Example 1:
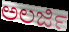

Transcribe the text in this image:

ಅಲರ್ಜಿ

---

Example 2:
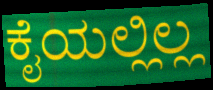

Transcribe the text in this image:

ಕೈಯಲ್ಲಿಲ್ಲ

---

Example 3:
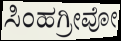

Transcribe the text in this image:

ಸಿಂಹಗ್ರೀವೋ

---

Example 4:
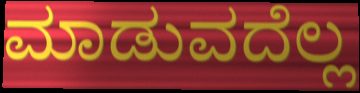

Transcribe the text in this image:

ಮಾಡುವದೆಲ್ಲ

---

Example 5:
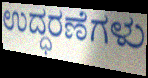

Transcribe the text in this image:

ಉದ್ಧರಣೆಗಳು